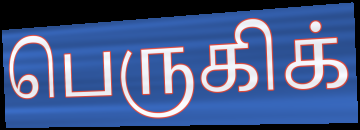
பெருகிக்